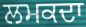
ਲਮਕਦਾ